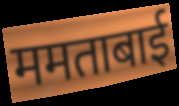
ममताबाई